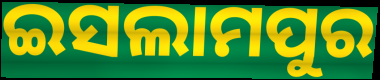
ଇସଲାମପୁର